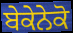
ਬੇਕੇਨੇਕੋ